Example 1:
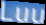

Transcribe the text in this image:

Luu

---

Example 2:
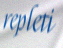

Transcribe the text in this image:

repleti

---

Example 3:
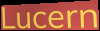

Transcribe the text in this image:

Lucern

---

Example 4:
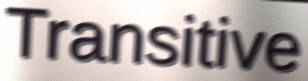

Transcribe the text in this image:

Transitive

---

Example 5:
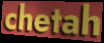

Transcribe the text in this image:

chetah